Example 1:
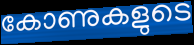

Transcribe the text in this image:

കോണുകളുടെ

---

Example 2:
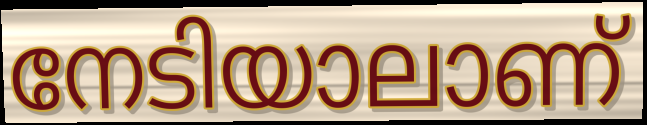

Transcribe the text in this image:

നേടിയാലാണ്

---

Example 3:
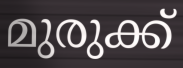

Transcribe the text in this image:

മുരുക്ക്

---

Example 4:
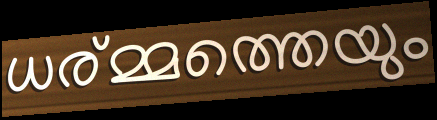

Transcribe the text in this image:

ധര്മ്മത്തെയും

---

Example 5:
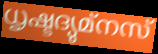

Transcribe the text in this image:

ധൃഷ്ടദ്യുമ്നസ്